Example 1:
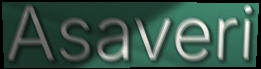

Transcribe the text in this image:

Asaveri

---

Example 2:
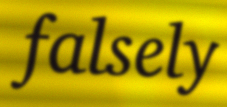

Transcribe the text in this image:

falsely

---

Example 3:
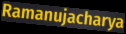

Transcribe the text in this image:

Ramanujacharya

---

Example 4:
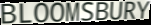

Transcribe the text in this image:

BLOOMSBURY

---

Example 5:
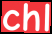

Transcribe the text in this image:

chl